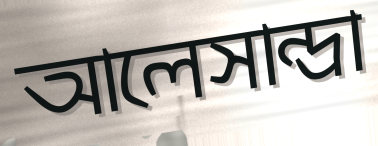
আলেসান্দ্রা